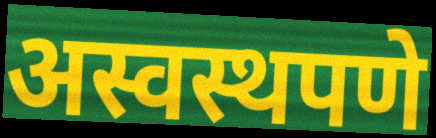
अस्वस्थपणे